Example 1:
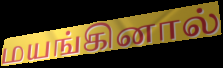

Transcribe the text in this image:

மயங்கினால்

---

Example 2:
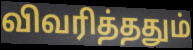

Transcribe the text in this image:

விவரித்ததும்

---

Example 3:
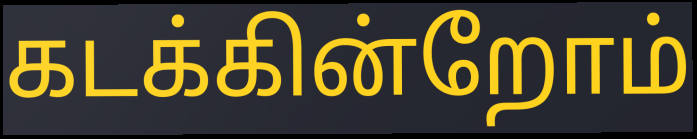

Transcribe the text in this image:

கடக்கின்றோம்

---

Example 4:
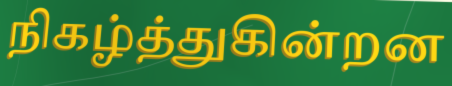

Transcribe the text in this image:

நிகழ்த்துகின்றன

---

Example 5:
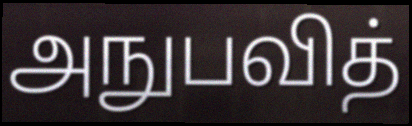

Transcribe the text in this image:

அநுபவித்